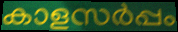
കാളസർപ്പം